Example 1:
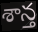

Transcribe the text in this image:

శాన్త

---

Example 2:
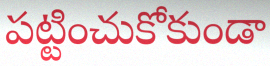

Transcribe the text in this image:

పట్టించుకోకుండా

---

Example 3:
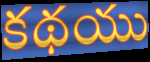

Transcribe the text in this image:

కథయు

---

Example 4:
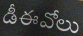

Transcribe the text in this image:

డీఈవోలు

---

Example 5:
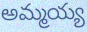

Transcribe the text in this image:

అమ్మయ్య